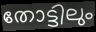
തോട്ടിലും